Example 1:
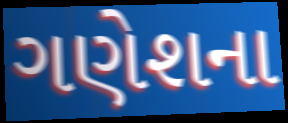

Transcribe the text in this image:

ગણેશના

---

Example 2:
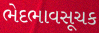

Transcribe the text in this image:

ભેદભાવસૂચક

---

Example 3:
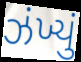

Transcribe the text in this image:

ઝંખ્યું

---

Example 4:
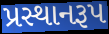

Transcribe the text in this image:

પ્રસ્થાનરૂપ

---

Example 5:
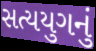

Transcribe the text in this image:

સત્યયુગનું